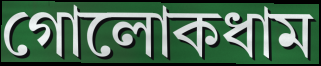
গোলোকধাম